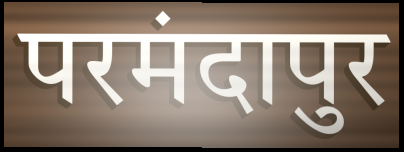
परमंदापुर